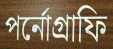
পর্নোগ্রাফি